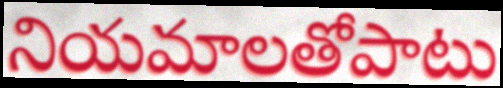
నియమాలతోపాటు